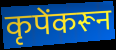
कृपेंकरून